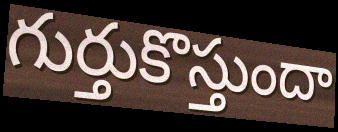
గుర్తుకొస్తుందా